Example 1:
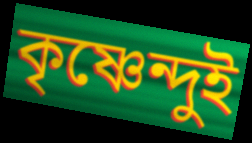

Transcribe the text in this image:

কৃষ্ণেন্দুই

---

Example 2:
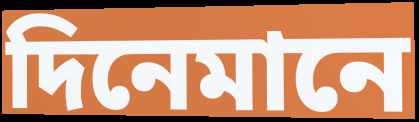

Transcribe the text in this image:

দিনেমানে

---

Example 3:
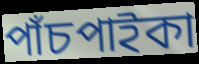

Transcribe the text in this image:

পাঁচপাইকা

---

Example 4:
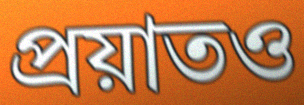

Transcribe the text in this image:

প্রয়াতও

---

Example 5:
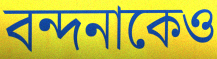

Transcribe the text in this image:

বন্দনাকেও